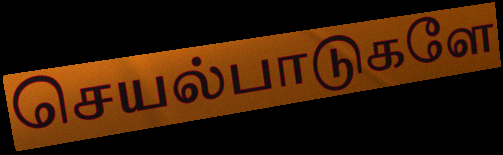
செயல்பாடுகளே